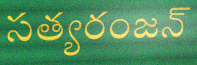
సత్యరంజన్